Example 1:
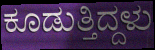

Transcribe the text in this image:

ಕೂಡುತ್ತಿದ್ದಳು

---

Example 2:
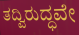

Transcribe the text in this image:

ತದ್ವಿರುದ್ಧವೇ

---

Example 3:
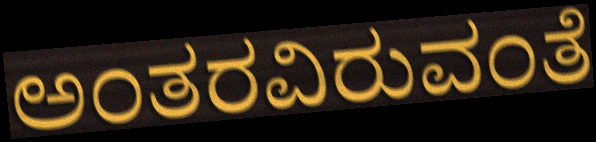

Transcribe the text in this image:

ಅಂತರವಿರುವಂತೆ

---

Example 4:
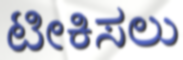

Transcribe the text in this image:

ಟೀಕಿಸಲು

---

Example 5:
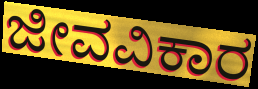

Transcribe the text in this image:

ಜೀವವಿಕಾರ